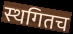
स्थगितच